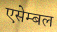
एसेम्बल